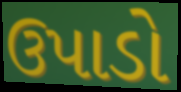
ઉપાડો